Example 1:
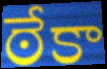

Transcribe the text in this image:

ఠేకా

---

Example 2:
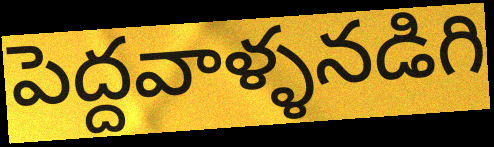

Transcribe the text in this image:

పెద్దవాళ్ళనడిగి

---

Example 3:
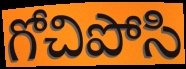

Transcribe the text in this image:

గోచిపోసి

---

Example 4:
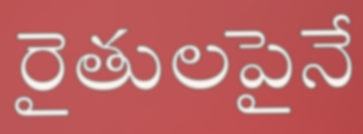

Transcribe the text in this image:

రైతులపైనే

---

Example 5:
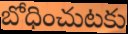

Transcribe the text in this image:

బోధించుటకు